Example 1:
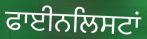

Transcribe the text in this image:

ਫਾਈਨਲਿਸਟਾਂ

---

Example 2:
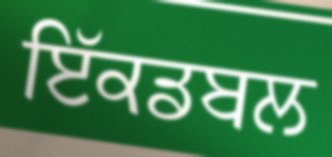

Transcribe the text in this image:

ਇੱਕਡਬਲ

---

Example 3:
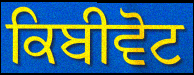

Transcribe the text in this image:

ਕਿਬੀਵੋਟ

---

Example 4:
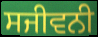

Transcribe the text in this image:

ਸਜੀਵਨੀ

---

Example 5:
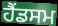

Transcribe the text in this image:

ਹੈਂਡਸਮ